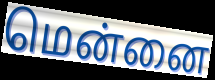
மென்னை